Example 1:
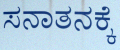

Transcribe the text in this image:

ಸನಾತನಕ್ಕೆ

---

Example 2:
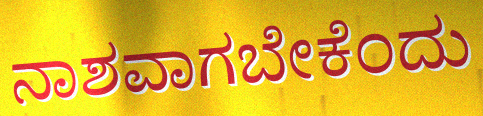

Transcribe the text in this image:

ನಾಶವಾಗಬೇಕೆಂದು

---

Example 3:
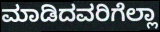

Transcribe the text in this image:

ಮಾಡಿದವರಿಗೆಲ್ಲಾ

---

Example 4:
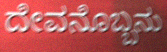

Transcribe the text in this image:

ದೇವನೊಬ್ಬನು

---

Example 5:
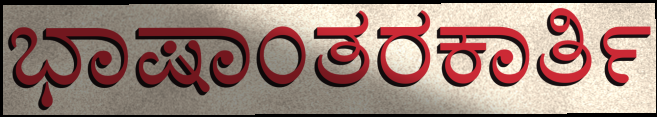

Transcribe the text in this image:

ಭಾಷಾಂತರಕಾರ್ತಿ